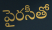
పైరసీతో